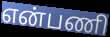
என்பணி